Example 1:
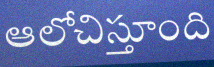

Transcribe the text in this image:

ఆలోచిస్తూంది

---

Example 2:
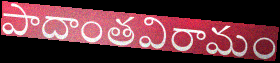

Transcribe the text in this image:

పాదాంతవిరామం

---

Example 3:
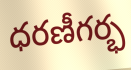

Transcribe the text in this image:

ధరణీగర్భ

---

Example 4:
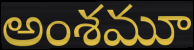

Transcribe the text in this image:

అంశమూ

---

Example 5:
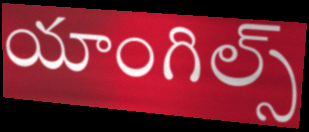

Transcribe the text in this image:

యాంగిల్స్